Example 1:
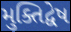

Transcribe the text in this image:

મુક્તિદ્વેષ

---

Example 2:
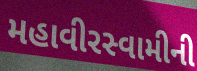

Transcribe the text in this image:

મહાવીરસ્વામીની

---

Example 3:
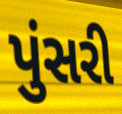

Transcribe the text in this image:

પુંસરી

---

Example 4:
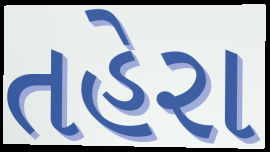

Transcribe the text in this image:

તહેરા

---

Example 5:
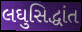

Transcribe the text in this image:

લઘુસિદ્ધાંત